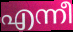
എന്നീ